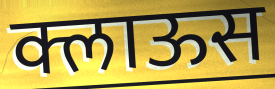
क्लाऊस